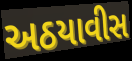
અઠયાવીસ